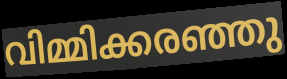
വിമ്മിക്കരഞ്ഞു